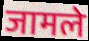
जामले